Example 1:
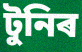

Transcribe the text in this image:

টুনিৰ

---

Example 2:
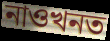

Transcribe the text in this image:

নাওখনত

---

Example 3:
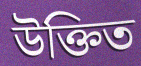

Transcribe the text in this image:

উক্তিত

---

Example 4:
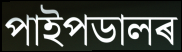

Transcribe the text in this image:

পাইপডালৰ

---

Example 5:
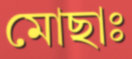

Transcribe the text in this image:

মোছাঃ